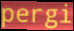
pergi